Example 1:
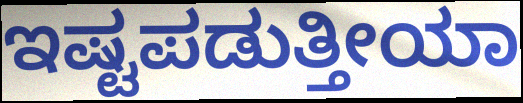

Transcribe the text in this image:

ಇಷ್ಟಪಡುತ್ತೀಯಾ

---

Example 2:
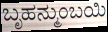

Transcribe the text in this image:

ಬೃಹನ್ಮುಂಬಯಿ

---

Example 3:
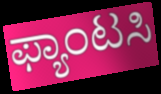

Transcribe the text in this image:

ಫ್ಯಾಂಟಸಿ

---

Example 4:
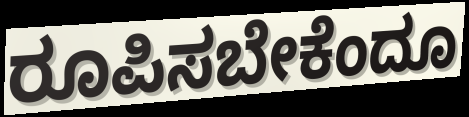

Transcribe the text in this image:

ರೂಪಿಸಬೇಕೆಂದೂ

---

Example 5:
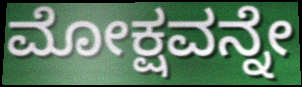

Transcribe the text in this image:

ಮೋಕ್ಷವನ್ನೇ